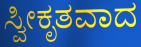
ಸ್ವೀಕೃತವಾದ